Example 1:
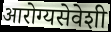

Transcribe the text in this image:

आरोग्यसेवेशी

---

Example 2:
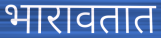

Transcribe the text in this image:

भारावतात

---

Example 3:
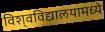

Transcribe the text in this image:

विश्वविद्यालयामध्ये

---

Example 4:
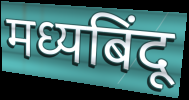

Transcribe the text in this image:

मध्यबिंदू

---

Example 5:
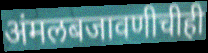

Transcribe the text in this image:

अंमलबजावणीचीही